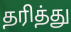
தரித்து